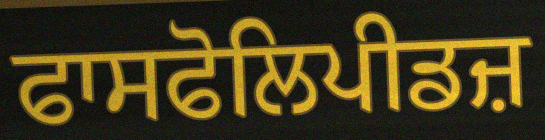
ਫਾਸਫੋਲਿਪੀਡਜ਼